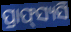
ପ୍ରାଫ୍‌ସ୍ୟସି